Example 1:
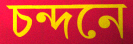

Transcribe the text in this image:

চন্দনে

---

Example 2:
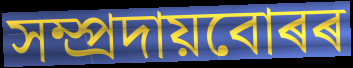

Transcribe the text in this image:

সম্প্ৰদায়বোৰৰ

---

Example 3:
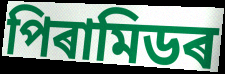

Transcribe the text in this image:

পিৰামিডৰ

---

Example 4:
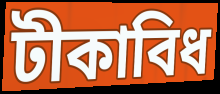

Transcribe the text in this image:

টীকাবিধ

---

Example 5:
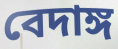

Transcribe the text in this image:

বেদাঙ্গ